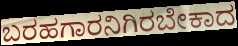
ಬರಹಗಾರನಿಗಿರಬೇಕಾದ